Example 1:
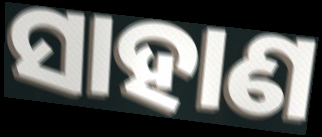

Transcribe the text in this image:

ସାହାଣ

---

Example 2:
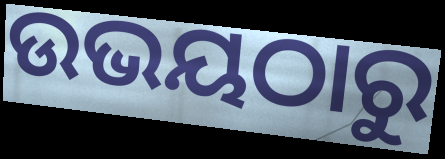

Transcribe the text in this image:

ଉଭୟଠାରୁ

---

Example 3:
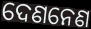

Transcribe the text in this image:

ଦେଣନେଣ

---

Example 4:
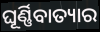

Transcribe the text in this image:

ଘୂର୍ଣ୍ଣିବାତ୍ୟାର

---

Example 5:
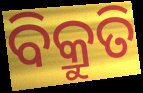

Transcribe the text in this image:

ବିକ୍ରୁତି